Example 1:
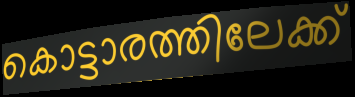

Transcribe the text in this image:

കൊട്ടാരത്തിലേക്ക്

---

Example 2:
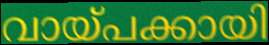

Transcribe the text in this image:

വായ്പക്കായി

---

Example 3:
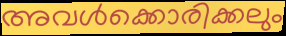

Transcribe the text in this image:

അവൾക്കൊരിക്കലും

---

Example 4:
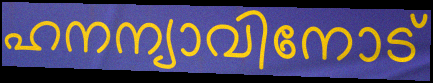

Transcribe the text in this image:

ഹനന്യാവിനോട്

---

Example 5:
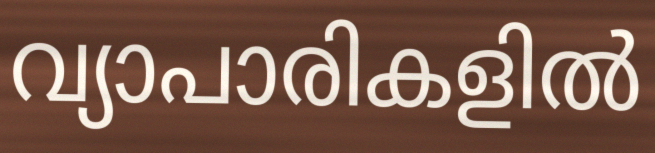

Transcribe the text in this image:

വ്യാപാരികളിൽ